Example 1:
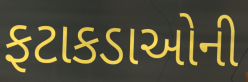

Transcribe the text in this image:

ફટાકડાઓની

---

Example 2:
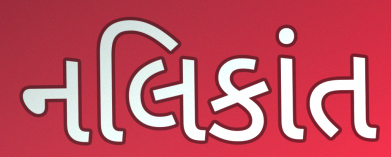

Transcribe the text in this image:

નલિકાંત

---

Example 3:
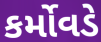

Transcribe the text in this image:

કર્મોવડે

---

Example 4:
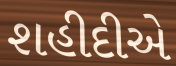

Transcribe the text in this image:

શહીદીએ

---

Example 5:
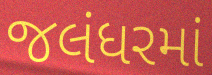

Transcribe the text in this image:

જલંધરમાં